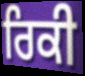
ਰਿਕੀ